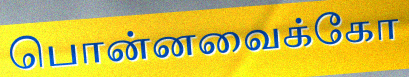
பொன்னவைக்கோ